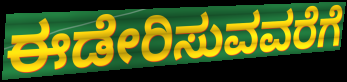
ಈಡೇರಿಸುವವರೆಗೆ